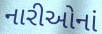
નારીઓનાં